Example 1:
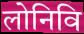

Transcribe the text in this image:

लोनिवि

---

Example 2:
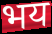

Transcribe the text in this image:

भय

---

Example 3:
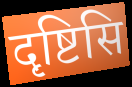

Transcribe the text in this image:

दृष्टिसि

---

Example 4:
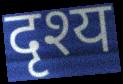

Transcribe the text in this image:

दृश्य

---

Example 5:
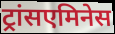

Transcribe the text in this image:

ट्रांसएमिनेस